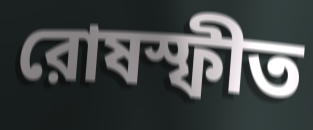
রোষস্ফীত